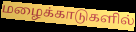
மழைக்காடுகளில்